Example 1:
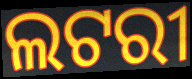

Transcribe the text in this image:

ଲଟରୀ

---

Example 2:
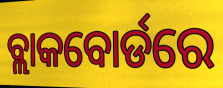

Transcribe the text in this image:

ବ୍ଲାକବୋର୍ଡରେ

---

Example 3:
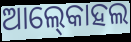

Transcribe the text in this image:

ଆଲ୍‍କୋହଲ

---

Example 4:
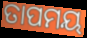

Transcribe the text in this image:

ତାପମୟ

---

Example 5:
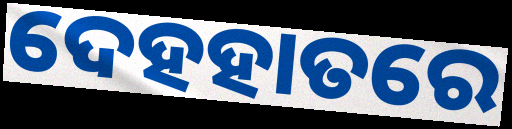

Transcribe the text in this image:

ଦେହହାତରେ